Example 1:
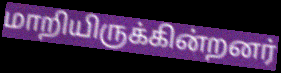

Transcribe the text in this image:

மாறியிருக்கின்றனர்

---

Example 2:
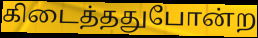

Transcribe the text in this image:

கிடைத்ததுபோன்ற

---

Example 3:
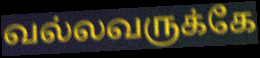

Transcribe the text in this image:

வல்லவருக்கே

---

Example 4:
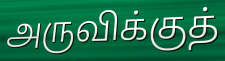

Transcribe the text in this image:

அருவிக்குத்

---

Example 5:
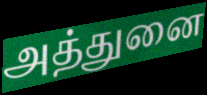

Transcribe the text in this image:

அத்துனை